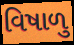
વિષાળુ